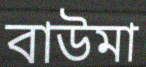
বাউমা